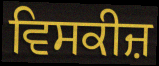
ਵਿਸਕੀਜ਼